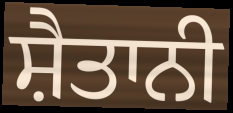
ਸ਼ੈਤਾਨੀ